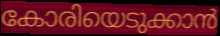
കോരിയെടുക്കാൻ